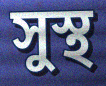
সুস্থ